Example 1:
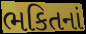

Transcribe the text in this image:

ભકિતનાં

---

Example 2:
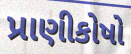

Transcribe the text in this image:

પ્રાણીકોષો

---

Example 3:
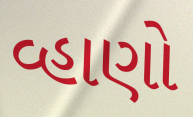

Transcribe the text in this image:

વ્હાણો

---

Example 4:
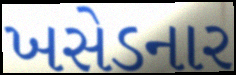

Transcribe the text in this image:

ખસેડનાર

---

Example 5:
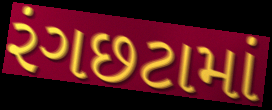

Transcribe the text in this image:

રંગછટામાં